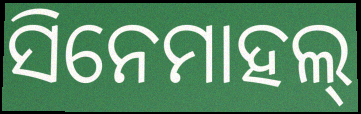
ସିନେମାହଲ୍